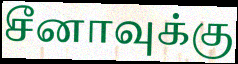
சீனாவுக்கு